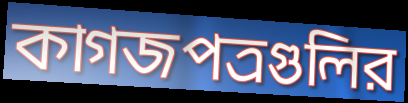
কাগজপত্রগুলির